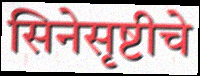
सिनेसृष्टीचे